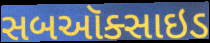
સબઑક્સાઇડ